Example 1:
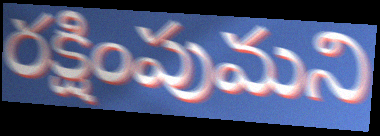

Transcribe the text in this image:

రక్షింపుమని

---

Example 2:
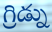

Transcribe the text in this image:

గ్రిడ్ను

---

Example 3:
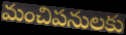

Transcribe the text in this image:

మంచిపనులకు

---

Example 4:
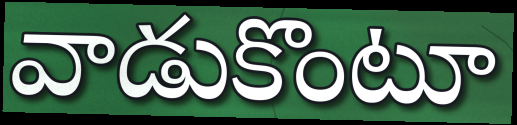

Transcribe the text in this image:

వాడుకొంటూ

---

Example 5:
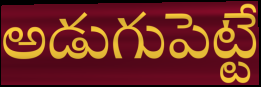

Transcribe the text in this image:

అడుగుపెట్టే